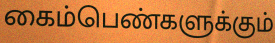
கைம்பெண்களுக்கும்